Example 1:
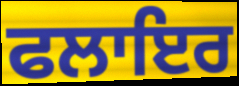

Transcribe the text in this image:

ਫਲਾਇਰ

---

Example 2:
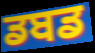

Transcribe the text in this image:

ਡਬਡ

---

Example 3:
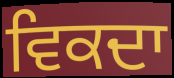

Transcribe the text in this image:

ਵਿਕਦਾ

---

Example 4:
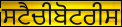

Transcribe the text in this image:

ਸਟੈਚੀਬੋਟਰੀਸ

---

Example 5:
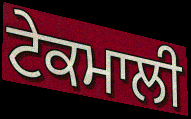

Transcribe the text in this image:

ਟੇਕਮਾਲੀ